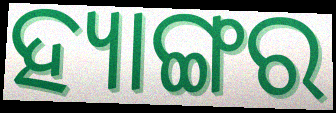
ହ୍ୟାଙ୍ଗର